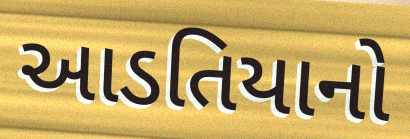
આડતિયાનો